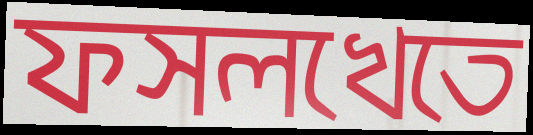
ফসলখেতে